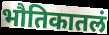
भौतिकातलं